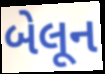
બેલૂન